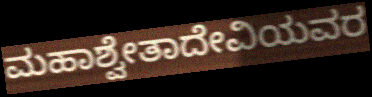
ಮಹಾಶ್ವೇತಾದೇವಿಯವರ